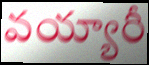
వయ్యారీ